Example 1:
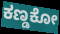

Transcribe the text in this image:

ಕಣ್ಡಕೋ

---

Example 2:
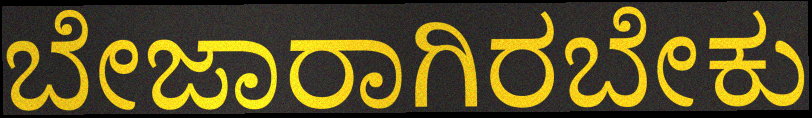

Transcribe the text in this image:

ಬೇಜಾರಾಗಿರಬೇಕು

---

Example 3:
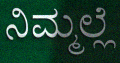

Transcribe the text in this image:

ನಿಮ್ಮಲ್ಲೆ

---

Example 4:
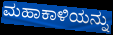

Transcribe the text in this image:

ಮಹಾಕಾಳಿಯನ್ನು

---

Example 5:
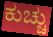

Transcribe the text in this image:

ಕುಚ್ಚು